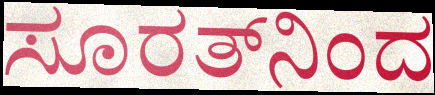
ಸೂರತ್‌ನಿಂದ